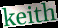
keith